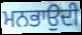
ਮਨਭਾਉਦੀ